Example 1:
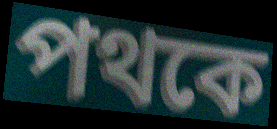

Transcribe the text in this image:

পথকে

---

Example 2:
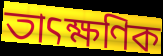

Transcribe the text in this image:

তাৎক্ষণিক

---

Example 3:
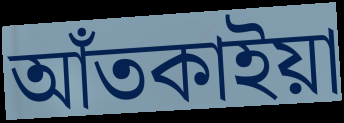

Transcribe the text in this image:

আঁতকাইয়া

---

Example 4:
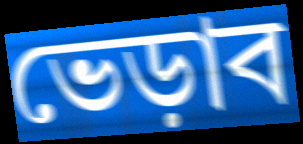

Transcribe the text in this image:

ভেড়াব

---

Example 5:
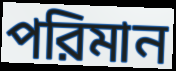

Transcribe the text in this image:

পরিমান